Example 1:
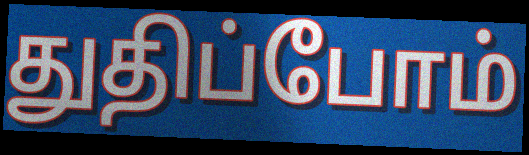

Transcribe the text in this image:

துதிப்போம்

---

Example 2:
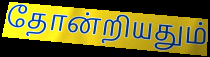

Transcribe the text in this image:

தோன்றியதும்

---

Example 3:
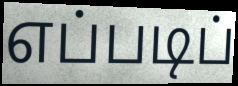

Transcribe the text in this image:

எப்படிப்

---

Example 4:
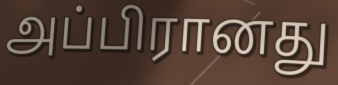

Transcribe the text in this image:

அப்பிரானது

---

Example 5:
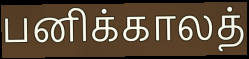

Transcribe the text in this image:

பனிக்காலத்